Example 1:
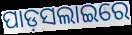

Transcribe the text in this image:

ପାଡ଼ସଲାଇରେ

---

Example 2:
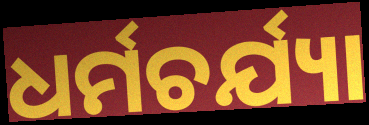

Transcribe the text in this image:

ଧର୍ମଚର୍ଯ୍ୟା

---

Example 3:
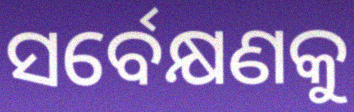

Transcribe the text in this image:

ସର୍ବେକ୍ଷଣକୁ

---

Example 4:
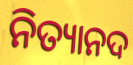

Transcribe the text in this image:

ନିତ୍ୟାନଦ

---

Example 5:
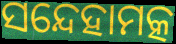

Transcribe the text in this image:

ସନ୍ଦେହାମତ୍କ